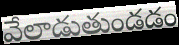
వేలాడుతుండడం